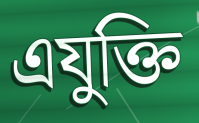
এযুক্তি